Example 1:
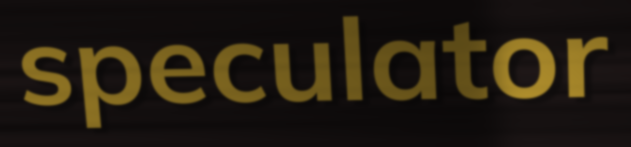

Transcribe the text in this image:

speculator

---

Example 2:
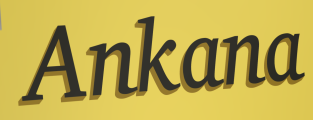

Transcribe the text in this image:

Ankana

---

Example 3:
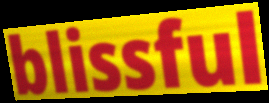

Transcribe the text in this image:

blissful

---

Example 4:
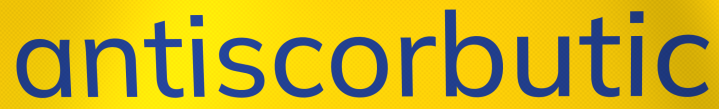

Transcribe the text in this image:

antiscorbutic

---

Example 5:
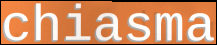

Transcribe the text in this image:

chiasma